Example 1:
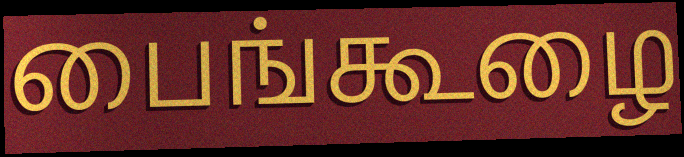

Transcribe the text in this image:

பைங்கூழை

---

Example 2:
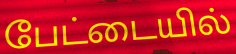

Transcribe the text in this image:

பேட்டையில்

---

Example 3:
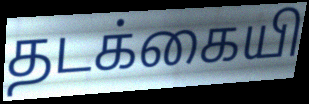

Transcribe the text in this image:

தடக்கையி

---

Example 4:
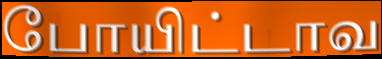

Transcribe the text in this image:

போயிட்டாவ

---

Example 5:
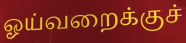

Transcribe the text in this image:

ஓய்வறைக்குச்